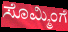
ಸೊಮ್ಮಿಂಗೆ